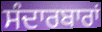
ਸੰਦਾਰਬਾਰਾਂ